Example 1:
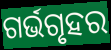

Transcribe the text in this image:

ଗର୍ଭଗୃହର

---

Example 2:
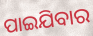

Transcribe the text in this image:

ପାଇଯିବାର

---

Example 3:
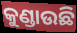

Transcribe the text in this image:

କୁଣ୍ଡାଉଛି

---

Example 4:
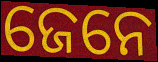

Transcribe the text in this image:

ଜେନେ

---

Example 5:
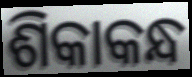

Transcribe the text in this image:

ଶିକାକନ୍ଧ